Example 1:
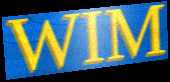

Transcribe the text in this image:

WIM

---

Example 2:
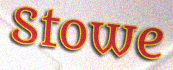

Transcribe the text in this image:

Stowe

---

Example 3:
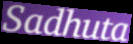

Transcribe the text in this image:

Sadhuta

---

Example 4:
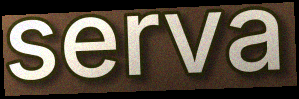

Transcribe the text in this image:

serva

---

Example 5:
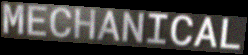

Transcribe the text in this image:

MECHANICAL